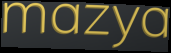
mazya